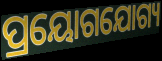
ପ୍ରୟୋଗଯୋଗ୍ୟ